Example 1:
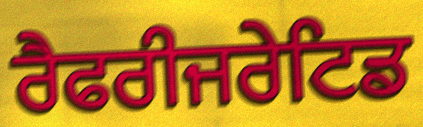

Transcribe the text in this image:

ਰੈਫਰੀਜਰੇਟਿਡ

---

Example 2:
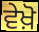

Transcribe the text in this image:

ਵੇਖ਼ੋ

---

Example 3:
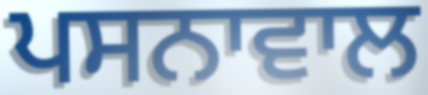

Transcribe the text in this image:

ਪਸਨਾਵਾਲ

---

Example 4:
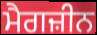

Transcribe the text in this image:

ਮੈਗਜ਼ੀਨ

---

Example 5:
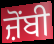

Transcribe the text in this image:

ਜ਼ੋਂਬੀ